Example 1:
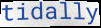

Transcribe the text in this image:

tidally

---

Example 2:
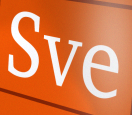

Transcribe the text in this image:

Sve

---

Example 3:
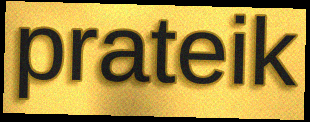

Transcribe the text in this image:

prateik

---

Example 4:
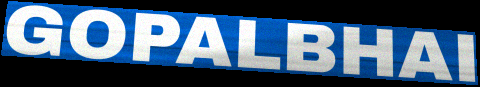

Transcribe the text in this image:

GOPALBHAI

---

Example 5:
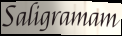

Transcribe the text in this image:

Saligramam